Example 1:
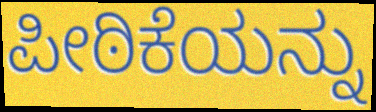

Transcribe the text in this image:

ಪೀಠಿಕೆಯನ್ನು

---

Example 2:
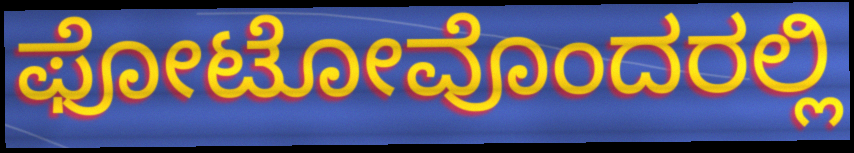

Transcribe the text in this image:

ಫೋಟೋವೊಂದರಲ್ಲಿ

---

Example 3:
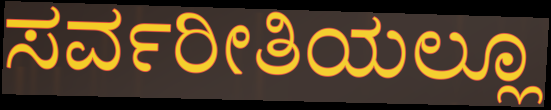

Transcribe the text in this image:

ಸರ್ವರೀತಿಯಲ್ಲೂ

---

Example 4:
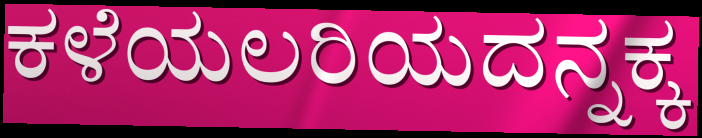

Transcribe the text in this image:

ಕಳೆಯಲರಿಯದನ್ನಕ್ಕ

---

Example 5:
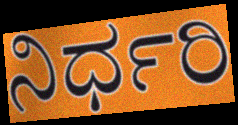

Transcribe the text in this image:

ನಿರ್ಧರಿ